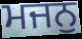
ਮਜਨੁ